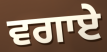
ਵਗਾਏ